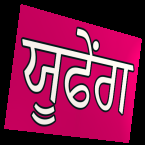
ਯੂਫੇਂਗ